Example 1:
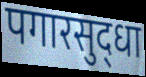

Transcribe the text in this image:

पगारसुद्धा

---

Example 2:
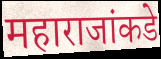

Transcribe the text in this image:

महाराजांकडे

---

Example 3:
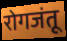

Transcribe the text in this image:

रोगजंतू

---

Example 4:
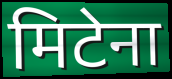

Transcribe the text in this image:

मिटेना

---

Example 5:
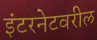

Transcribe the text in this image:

इंटरनेटवरील